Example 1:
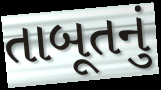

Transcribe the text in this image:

તાબૂતનું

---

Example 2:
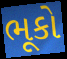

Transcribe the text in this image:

ભૂકો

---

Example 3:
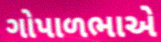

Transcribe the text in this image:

ગોપાળભાએ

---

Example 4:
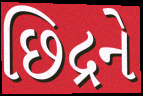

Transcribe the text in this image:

છિદ્રને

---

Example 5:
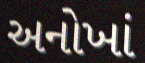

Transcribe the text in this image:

અનોખાં